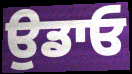
ਉਡਾਓ